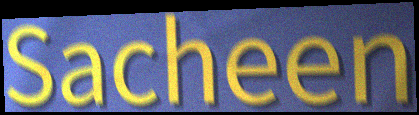
Sacheen